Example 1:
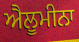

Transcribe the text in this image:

ਐਲੂਮੀਨਾ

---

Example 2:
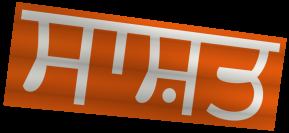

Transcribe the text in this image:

ਸਾਸ਼ਤ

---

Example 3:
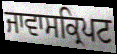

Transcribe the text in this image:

ਜਾਵਾਸਕ੍ਰਿਪਟ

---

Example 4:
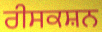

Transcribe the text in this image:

ਰੀਸਕਸ਼ਨ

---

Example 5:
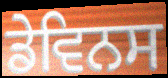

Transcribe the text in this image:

ਡੇਵਿਨਸ